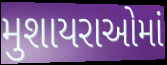
મુશાયરાઓમાં